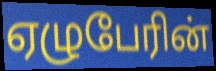
ஏழுபேரின்